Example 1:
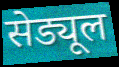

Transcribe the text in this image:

सेड्यूल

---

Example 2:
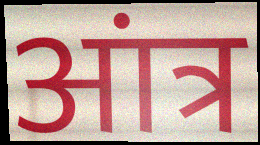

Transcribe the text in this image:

आंत्र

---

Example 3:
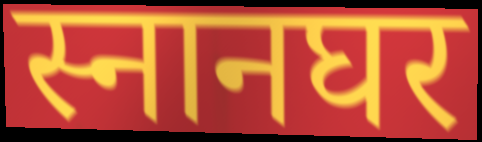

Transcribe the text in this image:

स्नानघर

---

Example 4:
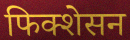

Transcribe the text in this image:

फिक्शेसन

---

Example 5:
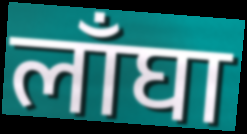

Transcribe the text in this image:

लाँघा